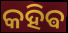
କହିଵ